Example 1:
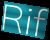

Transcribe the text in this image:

Rif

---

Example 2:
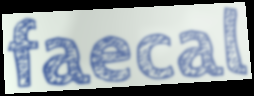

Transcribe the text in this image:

faecal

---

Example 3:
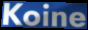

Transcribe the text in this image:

Koine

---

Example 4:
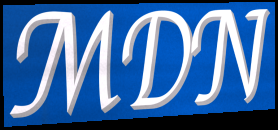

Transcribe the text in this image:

MDN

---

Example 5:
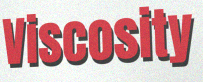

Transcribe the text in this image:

Viscosity